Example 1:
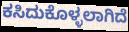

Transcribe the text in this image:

ಕಸಿದುಕೊಳ್ಳಲಾಗಿದೆ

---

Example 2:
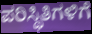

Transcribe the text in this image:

ಪರಿಸ್ಥಿತಿಗಳಿಗೆ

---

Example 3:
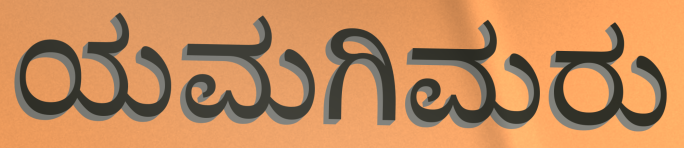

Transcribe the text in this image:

ಯಮಗಿಮರು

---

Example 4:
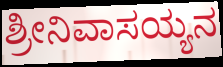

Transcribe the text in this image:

ಶ್ರೀನಿವಾಸಯ್ಯನ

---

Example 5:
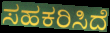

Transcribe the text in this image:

ಸಹಕರಿಸಿದೆ